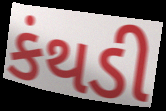
કંથડી